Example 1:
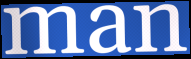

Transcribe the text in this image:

man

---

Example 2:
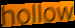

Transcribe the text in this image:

hollow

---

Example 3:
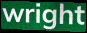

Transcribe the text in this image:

wright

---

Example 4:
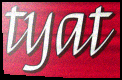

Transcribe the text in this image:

tyat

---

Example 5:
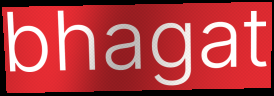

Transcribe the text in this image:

bhagat